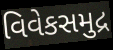
વિવેકસમુદ્ર